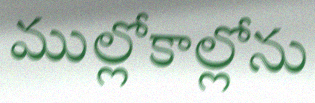
ముల్లోకాల్లోను